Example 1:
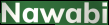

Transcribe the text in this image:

Nawabi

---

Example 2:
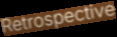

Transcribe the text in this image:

Retrospective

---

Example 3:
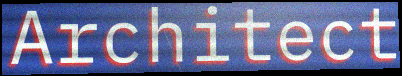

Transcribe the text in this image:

Architect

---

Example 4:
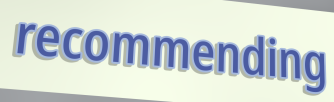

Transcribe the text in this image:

recommending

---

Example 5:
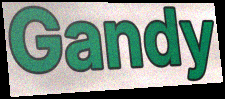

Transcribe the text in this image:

Gandy